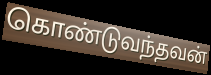
கொண்டுவந்தவன்